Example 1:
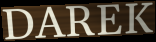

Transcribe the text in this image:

DAREK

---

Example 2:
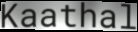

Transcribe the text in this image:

Kaathal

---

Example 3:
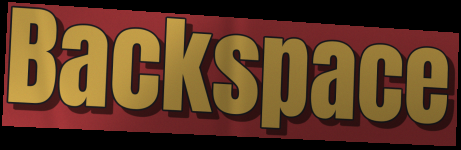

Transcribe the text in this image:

Backspace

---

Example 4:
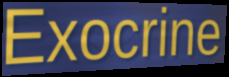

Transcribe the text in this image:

Exocrine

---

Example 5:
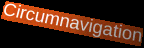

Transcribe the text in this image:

Circumnavigation